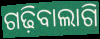
ଗଢ଼ିବାଲାଗି